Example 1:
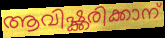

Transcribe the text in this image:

ആവിഷ്ക്കരിക്കാന്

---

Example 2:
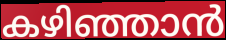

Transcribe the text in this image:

കഴിഞ്ഞാൻ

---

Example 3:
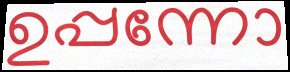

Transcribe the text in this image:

ഉപ്പന്നോ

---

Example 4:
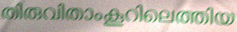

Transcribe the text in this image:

തിരുവിതാംകൂറിലെത്തിയ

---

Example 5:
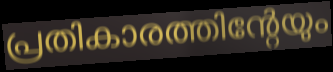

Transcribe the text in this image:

പ്രതികാരത്തിന്റേയും